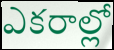
ఎకరాల్లో